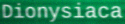
Dionysiaca